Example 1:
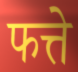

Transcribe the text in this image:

फत्ते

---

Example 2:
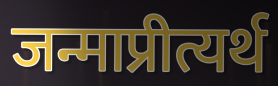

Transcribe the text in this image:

जन्माप्रीत्यर्थ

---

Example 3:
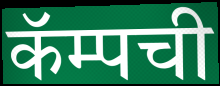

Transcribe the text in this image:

कॅम्पची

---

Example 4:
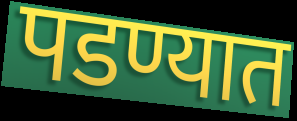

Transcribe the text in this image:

पडण्यात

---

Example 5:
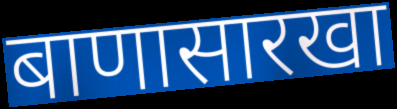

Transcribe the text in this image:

बाणासारखा